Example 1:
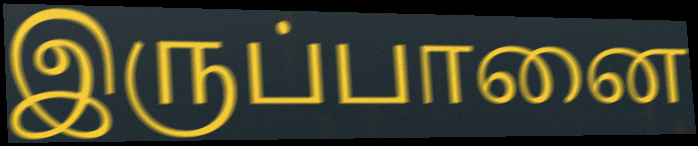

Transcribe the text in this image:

இருப்பானை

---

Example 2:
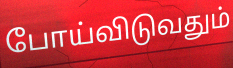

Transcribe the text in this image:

போய்விடுவதும்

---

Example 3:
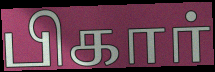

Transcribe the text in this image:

பிகார்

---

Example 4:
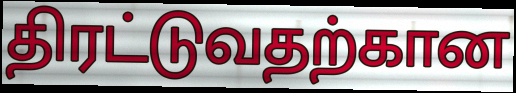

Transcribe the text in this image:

திரட்டுவதற்கான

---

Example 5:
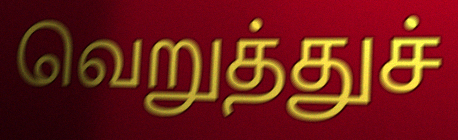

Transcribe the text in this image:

வெறுத்துச்